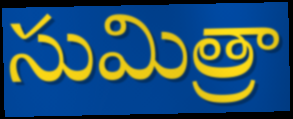
సుమిత్రా